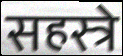
सहस्त्रे